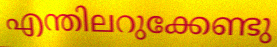
എന്തിലറുക്കേണ്ടു